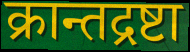
क्रान्तद्रष्टा